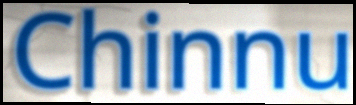
Chinnu